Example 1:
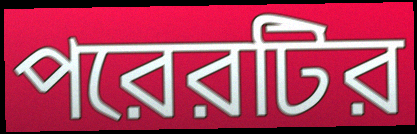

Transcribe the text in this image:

পরেরটির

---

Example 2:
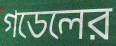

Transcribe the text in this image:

গডেলের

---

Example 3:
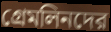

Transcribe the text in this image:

গ্রেমলিনদের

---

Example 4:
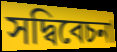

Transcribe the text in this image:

সদ্বিবেচনা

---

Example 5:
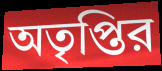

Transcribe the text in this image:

অতৃপ্তির